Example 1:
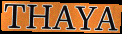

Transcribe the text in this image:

THAYA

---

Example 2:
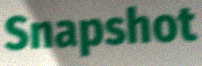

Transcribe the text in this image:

Snapshot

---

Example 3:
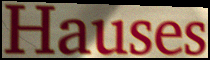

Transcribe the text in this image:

Hauses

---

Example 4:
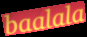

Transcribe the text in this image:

baalala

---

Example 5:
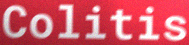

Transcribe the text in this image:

Colitis